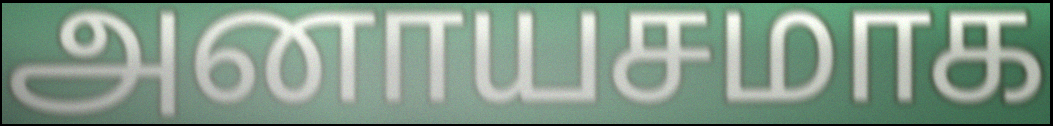
அனாயசமாக